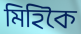
মিহিকৈ